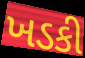
ખડકી